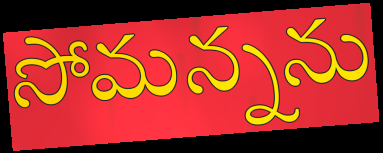
సోమన్నను